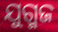
ଯୁଗ୍ମଜ